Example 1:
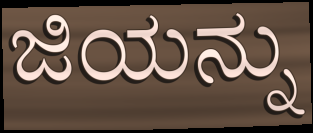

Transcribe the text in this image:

ಜಿಯನ್ನು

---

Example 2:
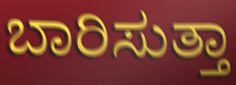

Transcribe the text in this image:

ಬಾರಿಸುತ್ತಾ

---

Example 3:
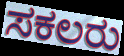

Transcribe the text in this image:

ಸಕಲರು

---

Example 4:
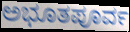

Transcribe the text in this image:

ಅಭೂತಪೂರ್ವ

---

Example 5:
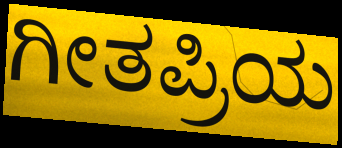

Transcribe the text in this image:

ಗೀತಪ್ರಿಯ